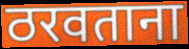
ठरवताना